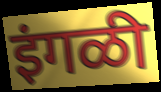
इंगळी